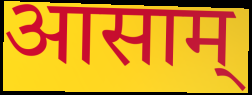
आसाम्